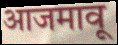
आजमावू